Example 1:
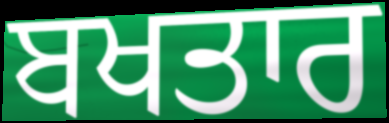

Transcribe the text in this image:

ਬਖਤਾਰ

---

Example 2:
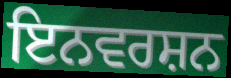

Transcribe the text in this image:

ਇਨਵਰਸ਼ਨ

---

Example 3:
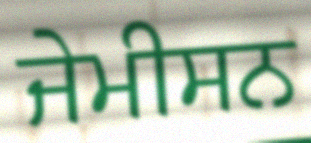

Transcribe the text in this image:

ਜੇਮੀਸਨ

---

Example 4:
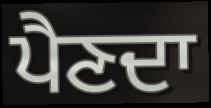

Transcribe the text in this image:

ਪੈਣਦਾ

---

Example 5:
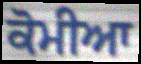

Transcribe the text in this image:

ਕੋਮੀਆ